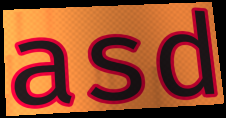
asd